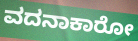
ವದನಾಕಾರೋ